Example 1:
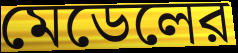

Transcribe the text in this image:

মেডেলের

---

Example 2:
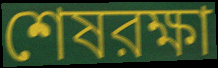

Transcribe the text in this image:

শেষরক্ষা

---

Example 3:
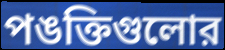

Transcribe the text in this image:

পঙক্তিগুলোর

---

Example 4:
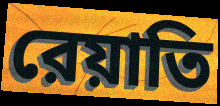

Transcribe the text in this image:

রেয়াতি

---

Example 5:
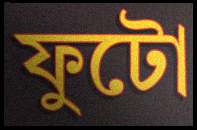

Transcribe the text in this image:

ফুটো